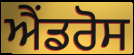
ਐਂਡਰੋਸ